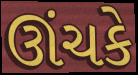
ઊંચકે